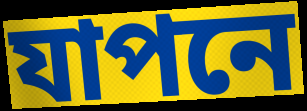
যাপনে